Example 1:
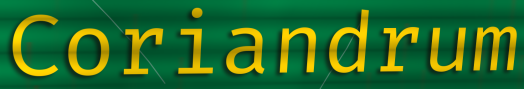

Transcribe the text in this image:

Coriandrum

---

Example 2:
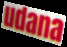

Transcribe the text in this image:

udana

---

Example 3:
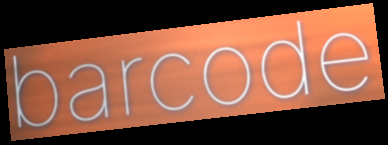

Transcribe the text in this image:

barcode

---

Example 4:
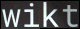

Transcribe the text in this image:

wikt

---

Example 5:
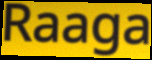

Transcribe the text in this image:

Raaga